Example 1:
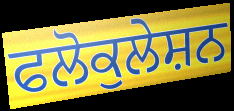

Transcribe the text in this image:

ਫਲੋਕੁਲੇਸ਼ਨ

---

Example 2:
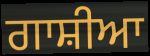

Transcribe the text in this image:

ਗਾਸ਼ੀਆ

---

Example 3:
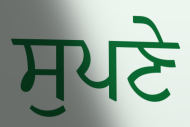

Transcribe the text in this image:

ਸੁਪਣੇ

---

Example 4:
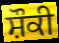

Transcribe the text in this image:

ਸ਼ੌਕੀ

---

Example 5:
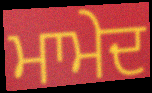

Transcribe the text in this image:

ਮਾਮੇਦ